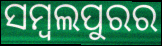
ସମ୍ୱଲପୁରର